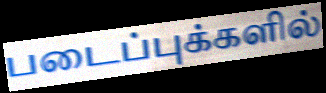
படைப்புக்களில்